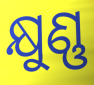
କ୍ଷୁଣ୍ଣ